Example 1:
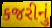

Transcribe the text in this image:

કજરીનું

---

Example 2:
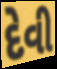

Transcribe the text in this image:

દેવી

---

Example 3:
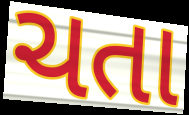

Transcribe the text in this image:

ચતા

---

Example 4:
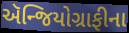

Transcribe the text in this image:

ઍન્જિયોગ્રાફીના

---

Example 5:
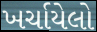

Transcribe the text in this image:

ખર્ચાયેલો